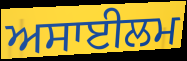
ਅਸਾਈਲਮ